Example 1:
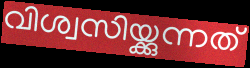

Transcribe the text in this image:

വിശ്വസിയ്ക്കുന്നത്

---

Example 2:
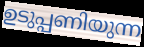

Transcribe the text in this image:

ഉടുപ്പണിയുന്ന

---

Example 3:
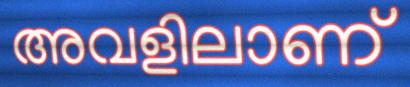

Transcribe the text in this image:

അവളിലാണ്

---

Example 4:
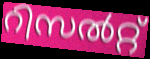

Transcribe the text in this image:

റിസൽറ്റ്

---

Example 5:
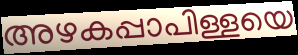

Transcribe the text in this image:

അഴകപ്പാപിള്ളയെ